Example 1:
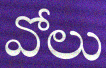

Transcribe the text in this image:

వోలు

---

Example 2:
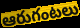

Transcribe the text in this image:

ఆరుగంటలు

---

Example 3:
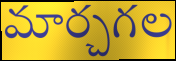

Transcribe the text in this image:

మార్చగల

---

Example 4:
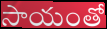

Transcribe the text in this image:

సాయంతో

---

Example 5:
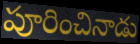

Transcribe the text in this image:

పూరించినాడు